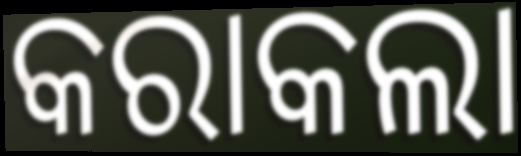
କରାକଲା